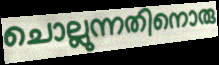
ചൊല്ലുന്നതിനൊരു